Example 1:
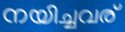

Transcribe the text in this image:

നയിച്ചവര്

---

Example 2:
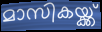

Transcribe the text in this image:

മാസികയ്ക്ക്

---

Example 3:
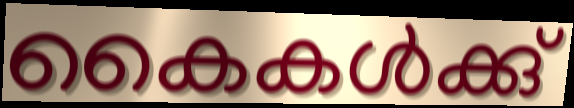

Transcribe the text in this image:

കൈകൾക്കു്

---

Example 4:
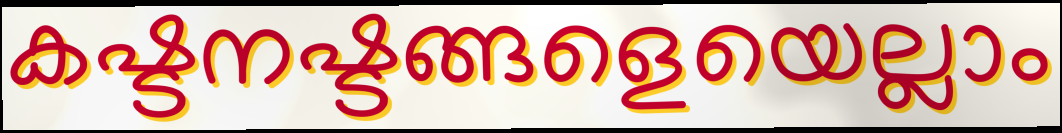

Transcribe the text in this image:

കഷ്ടനഷ്ടങ്ങളെയെല്ലാം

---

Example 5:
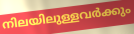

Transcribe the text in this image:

നിലയിലുള്ളവർക്കും